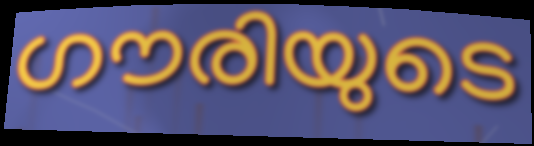
ഗൗരിയുടെ